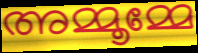
അമ്മൂമ്മേ